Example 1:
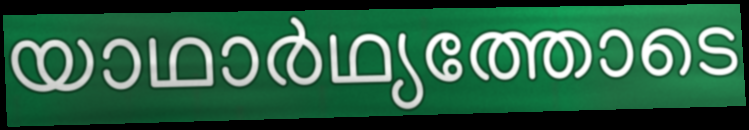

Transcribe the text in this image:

യാഥാർഥ്യത്തോടെ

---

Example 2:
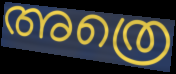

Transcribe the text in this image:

അത്രെ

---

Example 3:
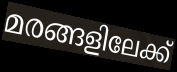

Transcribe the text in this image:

മരങ്ങളിലേക്ക്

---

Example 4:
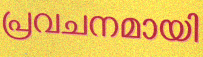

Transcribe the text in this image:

പ്രവചനമായി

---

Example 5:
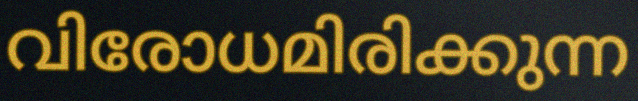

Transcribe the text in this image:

വിരോധമിരിക്കുന്ന